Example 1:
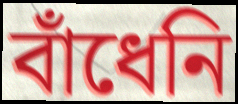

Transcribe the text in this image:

বাঁধেনি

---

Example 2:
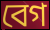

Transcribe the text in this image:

বেগ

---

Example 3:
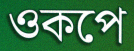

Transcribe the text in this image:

ওকপে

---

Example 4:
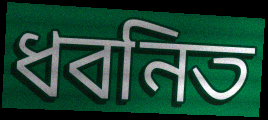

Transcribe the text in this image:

ধবনিত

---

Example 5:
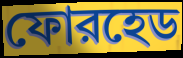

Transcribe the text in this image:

ফোরহেড